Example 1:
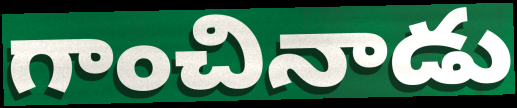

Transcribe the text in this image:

గాంచినాడు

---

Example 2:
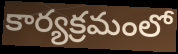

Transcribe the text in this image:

కార్యక్రమంలో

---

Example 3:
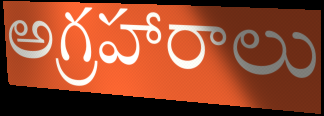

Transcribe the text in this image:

అగ్రహారాలు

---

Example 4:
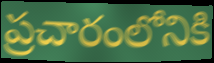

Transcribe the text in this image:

ప్రచారంలోనికి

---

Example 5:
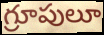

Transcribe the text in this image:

గ్రూపులూ